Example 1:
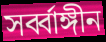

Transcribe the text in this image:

সর্ব্বাঙ্গীন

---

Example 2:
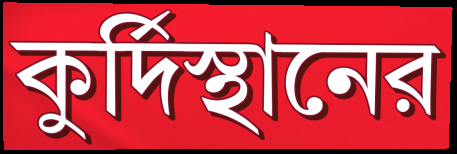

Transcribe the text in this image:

কুর্দিস্থানের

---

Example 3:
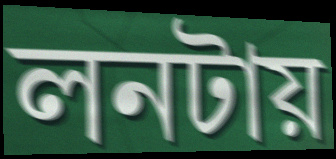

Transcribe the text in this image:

লনটায়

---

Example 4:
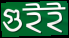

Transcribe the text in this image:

গুইই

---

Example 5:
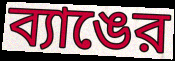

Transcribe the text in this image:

ব্যাঙের